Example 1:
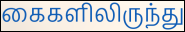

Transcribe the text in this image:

கைகளிலிருந்து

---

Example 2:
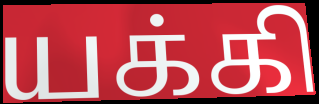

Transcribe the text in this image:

யக்கி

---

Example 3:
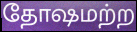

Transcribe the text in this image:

தோஷமற்ற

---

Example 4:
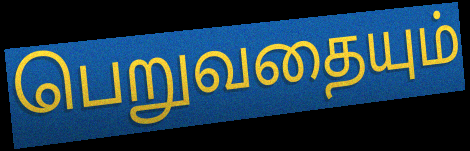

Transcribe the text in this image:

பெறுவதையும்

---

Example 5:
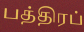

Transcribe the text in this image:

பத்திரப்